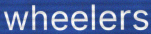
wheelers